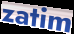
zatim